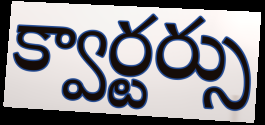
క్వార్టర్సు